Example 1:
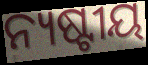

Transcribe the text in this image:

ନ୍ୟଷ୍ଟୀୟ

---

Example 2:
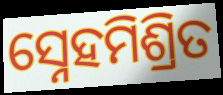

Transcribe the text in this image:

ସ୍ନେହମିଶ୍ରିତ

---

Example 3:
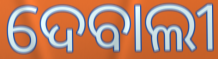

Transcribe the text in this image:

ଦେବାଲୀ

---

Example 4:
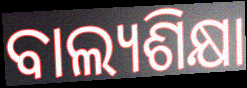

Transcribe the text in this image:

ବାଲ୍ୟଶିକ୍ଷା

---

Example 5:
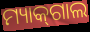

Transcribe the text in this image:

ମ୍ୟାକ୍‌ଗାଲ